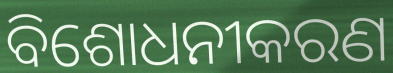
ବିଶୋଧନୀକରଣ